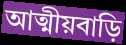
আত্মীয়বাড়ি